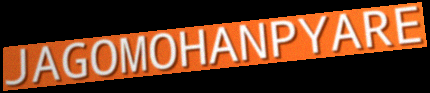
JAGOMOHANPYARE